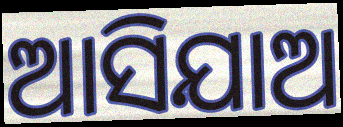
ଆସିଯାଅ